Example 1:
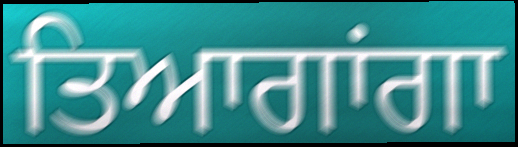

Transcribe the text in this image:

ਤਿਆਗਾਂਗਾ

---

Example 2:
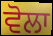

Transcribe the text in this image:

ਵੋਲਾ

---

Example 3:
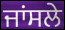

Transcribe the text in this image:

ਜਾਂਸਲੇ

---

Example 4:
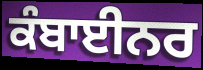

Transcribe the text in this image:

ਕੰਬਾਈਨਰ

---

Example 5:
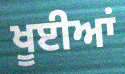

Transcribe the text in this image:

ਖੂਈਆਂ